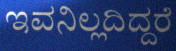
ಇವನಿಲ್ಲದಿದ್ದರೆ